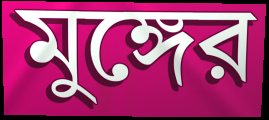
মুঙ্গের